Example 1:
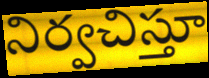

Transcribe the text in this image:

నిర్వచిస్తూ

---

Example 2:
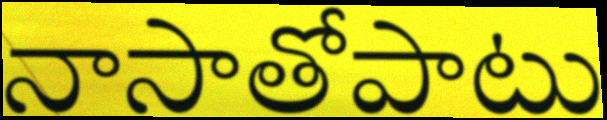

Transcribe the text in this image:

నాసాతోపాటు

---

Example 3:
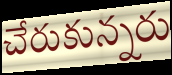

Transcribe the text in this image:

చేరుకున్నరు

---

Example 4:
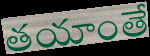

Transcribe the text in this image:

తయాంతే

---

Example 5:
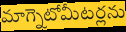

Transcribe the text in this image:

మాగ్నెటోమీటర్లను